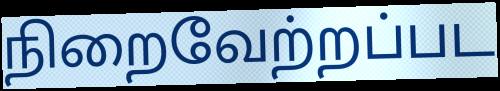
நிறைவேற்றப்பட